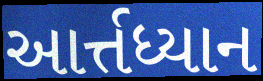
આર્ત્તધ્યાન